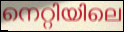
നെറ്റിയിലെ